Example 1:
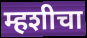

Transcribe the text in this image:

म्हशीचा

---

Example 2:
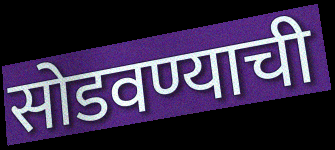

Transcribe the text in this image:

सोडवण्याची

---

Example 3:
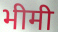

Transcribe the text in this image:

भीमी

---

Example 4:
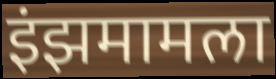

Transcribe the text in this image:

इंझमामला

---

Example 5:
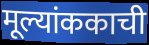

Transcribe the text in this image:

मूल्यांककाची